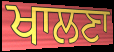
ਖਾਲਣਾ